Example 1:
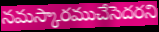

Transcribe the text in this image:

నమస్కారముచేసెదరని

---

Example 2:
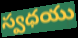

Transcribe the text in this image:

స్వధయు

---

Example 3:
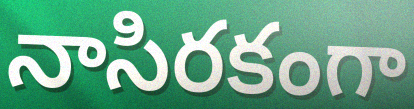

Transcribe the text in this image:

నాసిరకంగా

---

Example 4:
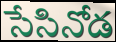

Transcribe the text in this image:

సేసినోడ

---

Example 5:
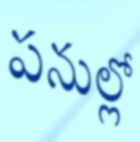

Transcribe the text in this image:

పనుల్లో